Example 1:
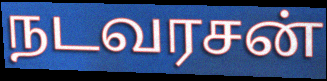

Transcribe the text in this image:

நடவரசன்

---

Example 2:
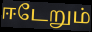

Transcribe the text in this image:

ஈடேறும்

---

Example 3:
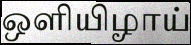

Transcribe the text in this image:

ஒளியிழாய்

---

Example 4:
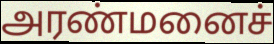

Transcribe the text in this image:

அரண்மனைச்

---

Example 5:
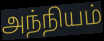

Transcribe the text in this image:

அந்நியம்